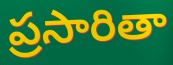
ప్రసారితా